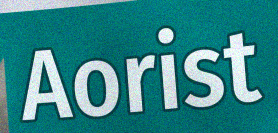
Aorist